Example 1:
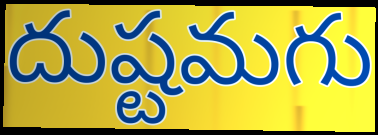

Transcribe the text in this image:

దుష్టమగు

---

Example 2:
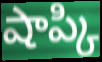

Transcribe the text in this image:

షాప్కి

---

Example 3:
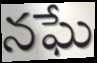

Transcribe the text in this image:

నఘే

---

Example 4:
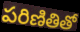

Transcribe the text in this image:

పరిణితితో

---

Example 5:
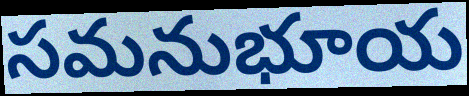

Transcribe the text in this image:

సమనుభూయ